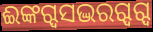
ଈଙ୍କଗ୍ଦସଦ୍ଭରଗ୍ଦଗ୍ଦ